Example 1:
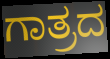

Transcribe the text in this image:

ಗಾತ್ರದ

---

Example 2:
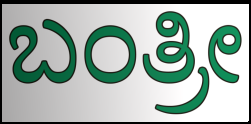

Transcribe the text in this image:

ಬಂತ್ರೀ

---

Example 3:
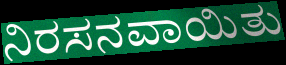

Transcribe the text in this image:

ನಿರಸನವಾಯಿತು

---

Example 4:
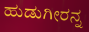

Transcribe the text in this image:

ಹುಡುಗೀರನ್ನ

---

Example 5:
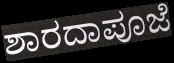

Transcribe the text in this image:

ಶಾರದಾಪೂಜೆ